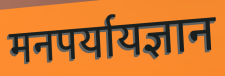
मनपर्यायज्ञान